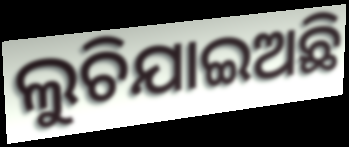
ଲୁଚିଯାଇଅଛି